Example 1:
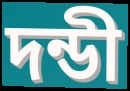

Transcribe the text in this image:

দন্ডী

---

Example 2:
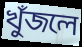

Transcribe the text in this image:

খুঁজলে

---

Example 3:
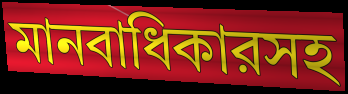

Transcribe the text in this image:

মানবাধিকারসহ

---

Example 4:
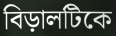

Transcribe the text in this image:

বিড়ালটিকে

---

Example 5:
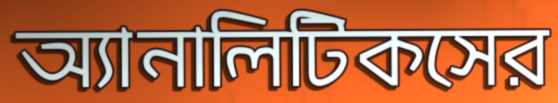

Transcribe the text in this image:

অ্যানালিটিকসের